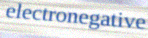
electronegative